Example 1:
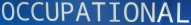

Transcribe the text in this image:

OCCUPATIONAL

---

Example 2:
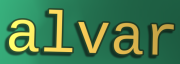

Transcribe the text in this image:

alvar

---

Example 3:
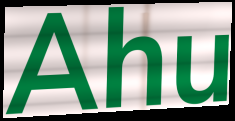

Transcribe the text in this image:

Ahu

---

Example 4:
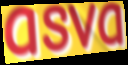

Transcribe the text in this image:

asva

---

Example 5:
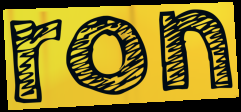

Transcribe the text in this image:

ron